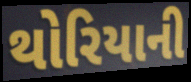
થોરિયાની